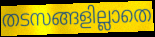
തടസങ്ങളില്ലാതെ